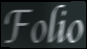
Folio